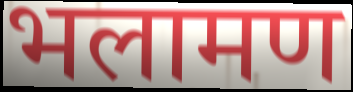
भलामण